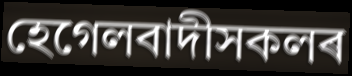
হেগেলবাদীসকলৰ